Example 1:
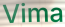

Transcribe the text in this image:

Vima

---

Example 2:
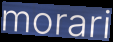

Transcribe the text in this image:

morari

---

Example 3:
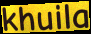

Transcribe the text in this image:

khuila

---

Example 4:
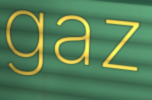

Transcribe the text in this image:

gaz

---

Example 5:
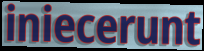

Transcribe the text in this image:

iniecerunt